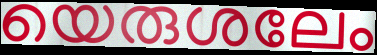
യെരുശലേം